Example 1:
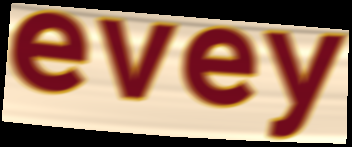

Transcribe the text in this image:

evey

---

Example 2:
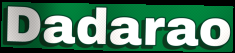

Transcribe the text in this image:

Dadarao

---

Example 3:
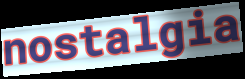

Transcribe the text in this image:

nostalgia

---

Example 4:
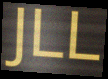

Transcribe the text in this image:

JLL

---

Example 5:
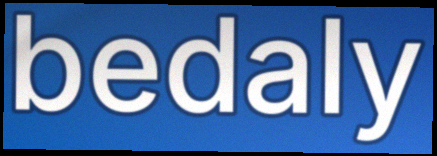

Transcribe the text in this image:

bedaly